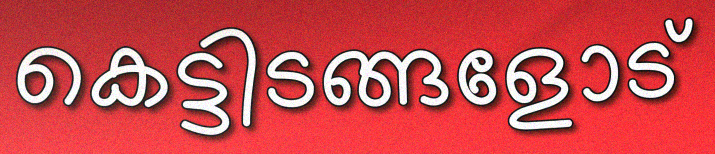
കെട്ടിടങ്ങളോട്